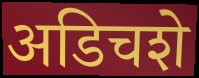
अडिचशे